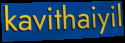
kavithaiyil